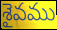
శైవము